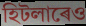
হিটলাৰেও